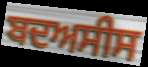
ਬਦਅਸੀਸ